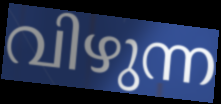
വിഴുന്ന